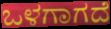
ಒಳಗಾಗದೆ